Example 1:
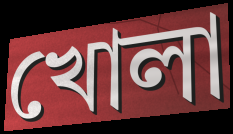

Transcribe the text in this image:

খোলা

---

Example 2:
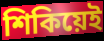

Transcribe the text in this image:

শিকিয়েই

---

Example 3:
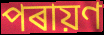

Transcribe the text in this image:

পৰায়ণ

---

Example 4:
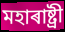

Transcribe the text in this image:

মহাৰাষ্ট্ৰী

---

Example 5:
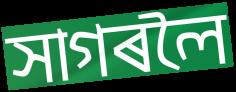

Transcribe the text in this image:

সাগৰলৈ